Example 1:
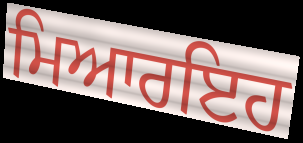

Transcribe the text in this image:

ਮਿਆਰਇਹ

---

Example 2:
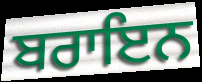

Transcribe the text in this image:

ਬਰਾਇਨ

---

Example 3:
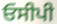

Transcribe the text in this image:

ਓਸੀਪੀ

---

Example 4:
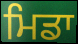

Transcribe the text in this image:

ਮਿਡਾ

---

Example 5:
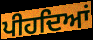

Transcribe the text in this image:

ਪੀਹਦਿਆਂ